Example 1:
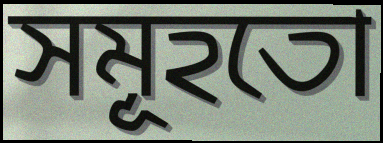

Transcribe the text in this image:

সমূহতো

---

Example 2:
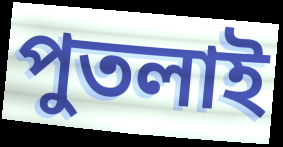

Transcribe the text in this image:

পুতলাই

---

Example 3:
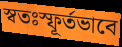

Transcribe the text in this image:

স্বতঃস্ফূৰ্তভাবে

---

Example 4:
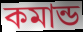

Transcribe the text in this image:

কমান্ড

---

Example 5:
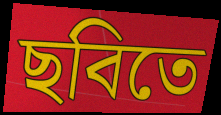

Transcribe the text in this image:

ছবিতে